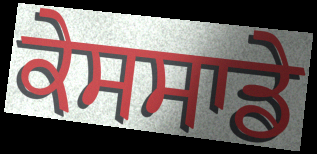
ਕੇਸਸਾਡੇ